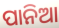
ପାନିଆ